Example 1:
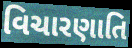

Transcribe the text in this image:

વિચારણાતિ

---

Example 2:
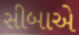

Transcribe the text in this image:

સીબાએ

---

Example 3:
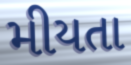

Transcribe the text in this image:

મીયતા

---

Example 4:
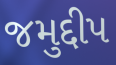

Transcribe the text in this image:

જમુદ્દીપ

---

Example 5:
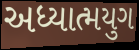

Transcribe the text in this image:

અધ્યાત્મયુગ